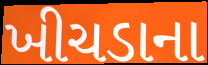
ખીચડાના